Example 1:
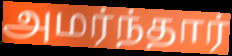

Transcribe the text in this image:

அமர்ந்தார்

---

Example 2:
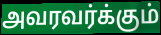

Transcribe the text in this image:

அவரவர்க்கும்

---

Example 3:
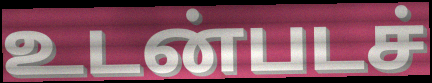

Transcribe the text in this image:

உடன்படச்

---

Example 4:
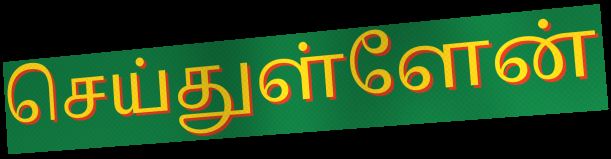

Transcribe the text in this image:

செய்துள்ளேன்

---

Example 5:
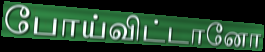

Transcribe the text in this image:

போய்விட்டானோ